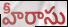
హీరాసు